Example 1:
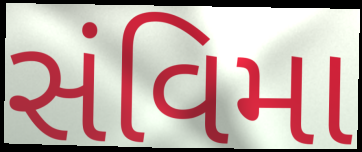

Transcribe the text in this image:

સંવિમા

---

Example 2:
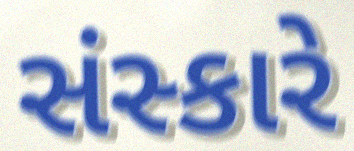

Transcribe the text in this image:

સંસ્કારે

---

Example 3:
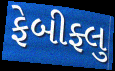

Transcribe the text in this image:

ફેબીફ્લુ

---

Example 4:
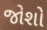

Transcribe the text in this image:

જોશો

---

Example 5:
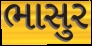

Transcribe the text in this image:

ભાસુર